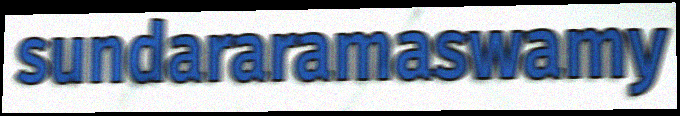
sundararamaswamy